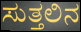
ಸುತ್ತಲಿನ